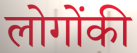
लोगोंकी